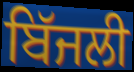
ਬਿੱਜਲੀ